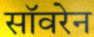
सॉवरेन